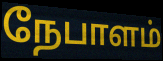
நேபாளம்